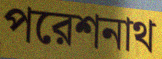
পরেশনাথ